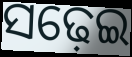
ସଢ଼େଇ